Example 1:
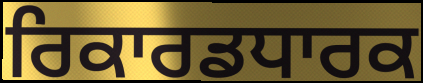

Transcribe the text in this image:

ਰਿਕਾਰਡਧਾਰਕ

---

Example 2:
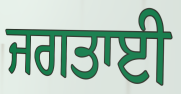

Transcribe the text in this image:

ਜਗਤਾਈ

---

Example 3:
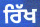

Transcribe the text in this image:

ਰਿੱਖ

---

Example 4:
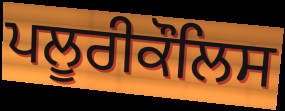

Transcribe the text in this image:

ਪਲੂਰੀਕੌਲਿਸ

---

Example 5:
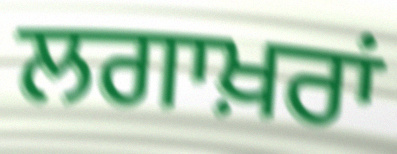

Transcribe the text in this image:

ਲਗਾਖ਼ਰਾਂ